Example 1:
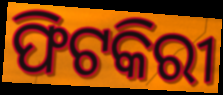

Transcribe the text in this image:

ଫିଟକିରୀ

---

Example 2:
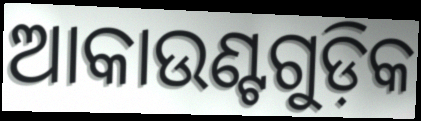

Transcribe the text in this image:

ଆକାଉଣ୍ଟଗୁଡ଼ିକ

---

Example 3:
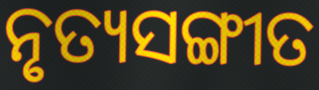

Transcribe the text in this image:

ନୃତ୍ୟସଙ୍ଗୀତ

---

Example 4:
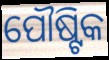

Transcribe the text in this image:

ପୌଷ୍ଟିକ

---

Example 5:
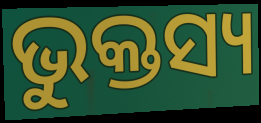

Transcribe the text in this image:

ଭୁକ୍ତସ୍ୟ